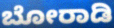
ಬೋರಾಡಿ